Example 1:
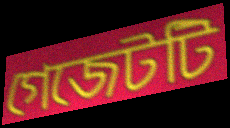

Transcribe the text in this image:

গেজেটটি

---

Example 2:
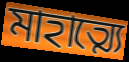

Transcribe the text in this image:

মাহাত্ম্যে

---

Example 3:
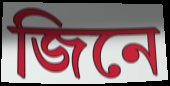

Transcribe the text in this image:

জিনে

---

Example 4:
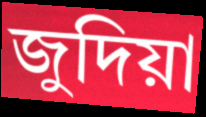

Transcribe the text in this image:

জুদিয়া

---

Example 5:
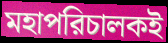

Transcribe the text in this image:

মহাপরিচালকই